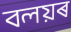
বলয়ৰ